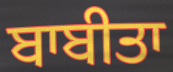
ਬਾਬੀਤਾ